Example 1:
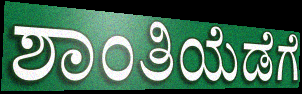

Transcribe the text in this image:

ಶಾಂತಿಯೆಡೆಗೆ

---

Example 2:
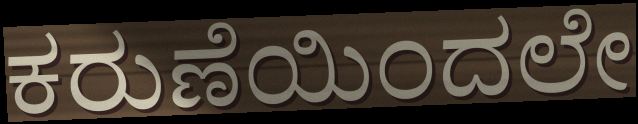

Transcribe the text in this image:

ಕರುಣೆಯಿಂದಲೇ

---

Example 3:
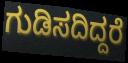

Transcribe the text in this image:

ಗುಡಿಸದಿದ್ದರೆ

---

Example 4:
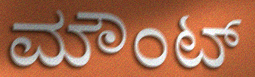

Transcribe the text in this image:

ಮೌಂಟ್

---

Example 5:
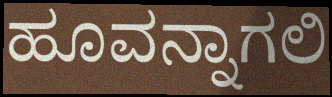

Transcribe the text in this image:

ಹೂವನ್ನಾಗಲಿ